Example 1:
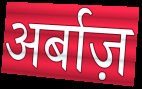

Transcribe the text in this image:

अर्बाज़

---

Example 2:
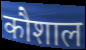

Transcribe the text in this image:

कौशाल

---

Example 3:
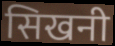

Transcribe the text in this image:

सिखनी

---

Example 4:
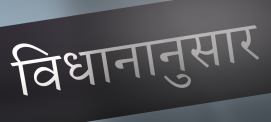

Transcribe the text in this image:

विधानानुसार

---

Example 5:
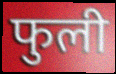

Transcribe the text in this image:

फुली